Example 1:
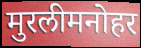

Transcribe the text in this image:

मुरलीमनोहर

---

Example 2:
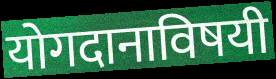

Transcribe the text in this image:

योगदानाविषयी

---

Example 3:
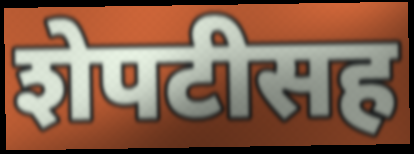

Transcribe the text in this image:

शेपटीसह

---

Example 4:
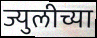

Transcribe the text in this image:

ज्युलीच्या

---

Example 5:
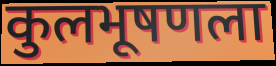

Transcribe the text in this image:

कुलभूषणला